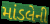
માંડલેની